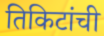
तिकिटांची